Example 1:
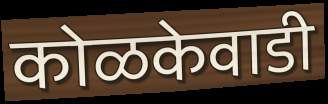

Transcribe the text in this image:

कोळकेवाडी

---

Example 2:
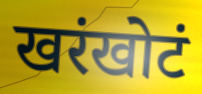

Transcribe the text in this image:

खरंखोटं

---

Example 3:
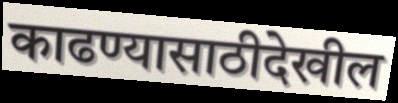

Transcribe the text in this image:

काढण्यासाठीदेखील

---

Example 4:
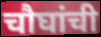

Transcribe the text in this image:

चौघांची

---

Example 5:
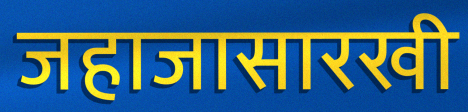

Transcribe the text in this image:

जहाजासारखी